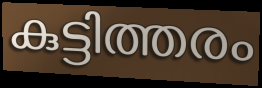
കുട്ടിത്തരം